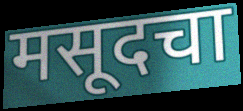
मसूदचा